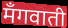
मँगवाती